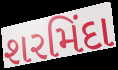
શરમિંદા